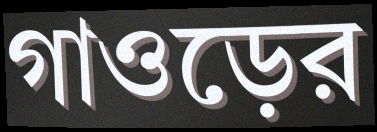
গাওড়ের